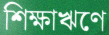
শিক্ষাঋণে